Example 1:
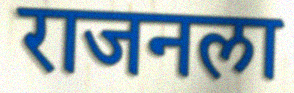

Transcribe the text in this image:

राजनला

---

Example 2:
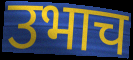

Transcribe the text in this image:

उभाच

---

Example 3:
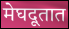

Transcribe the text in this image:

मेघदूतात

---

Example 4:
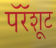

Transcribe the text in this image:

पॅरॅशूट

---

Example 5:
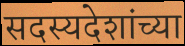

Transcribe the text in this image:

सदस्यदेशांच्या